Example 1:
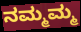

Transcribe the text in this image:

ನಮ್ಮಮ್ಮ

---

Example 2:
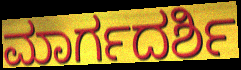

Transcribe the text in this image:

ಮಾರ್ಗದರ್ಶಿ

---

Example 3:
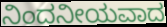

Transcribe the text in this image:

ನಿಂದನೀಯವಾದ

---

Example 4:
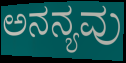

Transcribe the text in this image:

ಅನನ್ಯವು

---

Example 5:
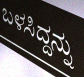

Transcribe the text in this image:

ಬಳಸಿದ್ದನ್ನು